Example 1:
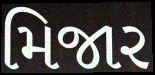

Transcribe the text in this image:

મિજાર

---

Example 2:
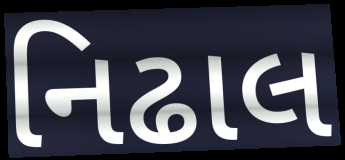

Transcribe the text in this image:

નિઢાલ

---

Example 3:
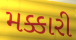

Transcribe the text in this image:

મક્કારી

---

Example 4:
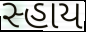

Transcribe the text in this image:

સ્હાય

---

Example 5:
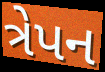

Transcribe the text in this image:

ત્રેપન